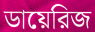
ডায়েরিজ